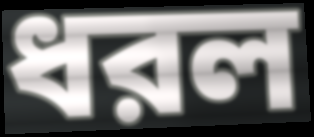
ধরল